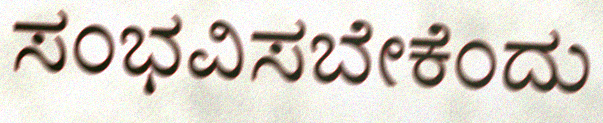
ಸಂಭವಿಸಬೇಕೆಂದು